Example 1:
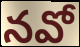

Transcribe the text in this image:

నవో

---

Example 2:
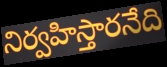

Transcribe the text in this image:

నిర్వహిస్తారనేది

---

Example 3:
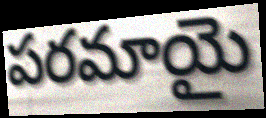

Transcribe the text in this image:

పరమాయై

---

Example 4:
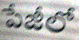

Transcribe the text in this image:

పేజీలో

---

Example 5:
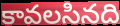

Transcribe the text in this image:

కావలసినది